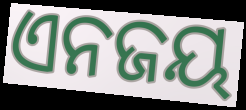
ଏନଜୟ